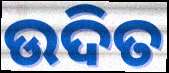
ଉଦିତ